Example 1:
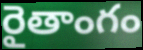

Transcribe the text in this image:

రైతాంగం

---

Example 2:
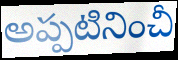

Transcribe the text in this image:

అప్పటినించీ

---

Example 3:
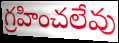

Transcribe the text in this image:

గ్రహించలేవు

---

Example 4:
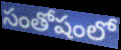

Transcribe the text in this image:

సంతోషంలో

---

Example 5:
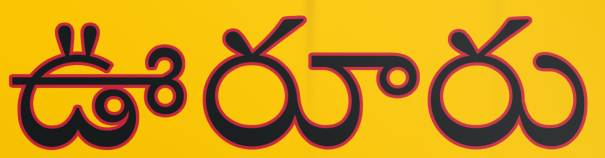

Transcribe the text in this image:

ఊరూరు